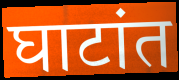
घाटांत